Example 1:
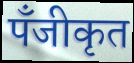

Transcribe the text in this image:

पँजीकृत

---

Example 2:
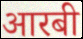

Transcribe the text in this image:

आरबी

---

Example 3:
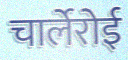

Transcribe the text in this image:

चार्लेरोई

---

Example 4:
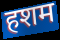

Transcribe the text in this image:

हशम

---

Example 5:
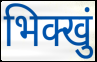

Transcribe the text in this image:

भिक्खुं